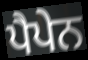
ਪੈਪੇਨ